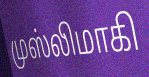
முஸ்லிமாகி